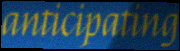
anticipating